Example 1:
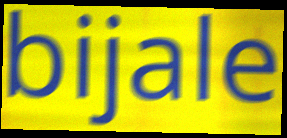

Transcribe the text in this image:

bijale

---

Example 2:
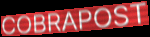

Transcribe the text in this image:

COBRAPOST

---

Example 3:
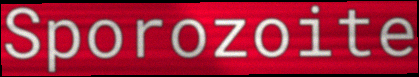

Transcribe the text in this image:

Sporozoite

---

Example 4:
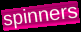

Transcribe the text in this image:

spinners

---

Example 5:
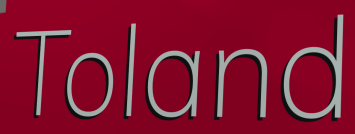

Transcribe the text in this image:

Toland